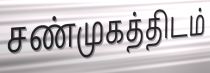
சண்முகத்திடம்